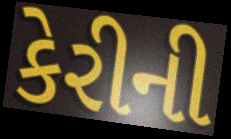
કેરીની